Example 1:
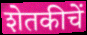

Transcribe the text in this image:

शेतकीचें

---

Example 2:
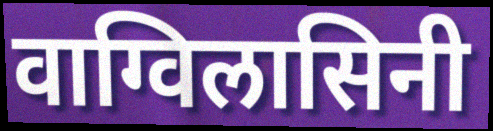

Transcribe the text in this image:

वाग्विलासिनी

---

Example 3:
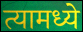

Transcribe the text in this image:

त्यामध्ये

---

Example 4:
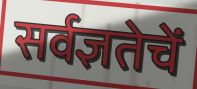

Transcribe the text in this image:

सर्वज्ञतेचें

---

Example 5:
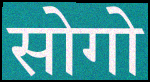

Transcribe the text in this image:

सोगो